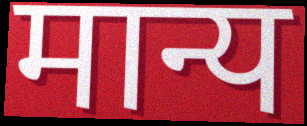
मान्य